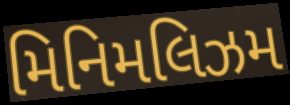
મિનિમલિઝમ